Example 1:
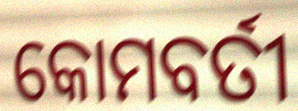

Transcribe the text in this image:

କୋମବର୍ତୀ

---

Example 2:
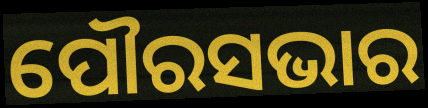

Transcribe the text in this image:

ପୌରସଭାର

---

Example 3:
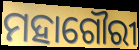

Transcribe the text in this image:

ମହାଗୌରୀ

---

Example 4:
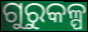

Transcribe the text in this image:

ଗୁରୁକଳ୍ପ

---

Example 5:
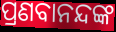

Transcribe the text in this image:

ପ୍ରଣବାନନ୍ଦଙ୍କ